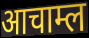
आचाम्ल